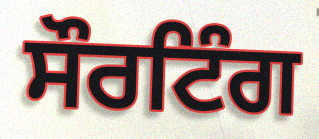
ਸੌਰਟਿੰਗ